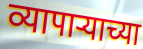
व्यापाऱ्याच्या